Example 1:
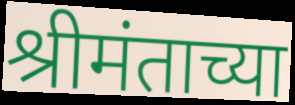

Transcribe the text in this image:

श्रीमंताच्या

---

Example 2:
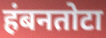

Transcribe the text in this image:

हंबनतोटा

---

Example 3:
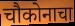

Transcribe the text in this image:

चौकोनाचा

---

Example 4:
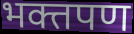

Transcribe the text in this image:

भक्तपण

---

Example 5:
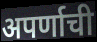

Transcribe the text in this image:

अपर्णाची